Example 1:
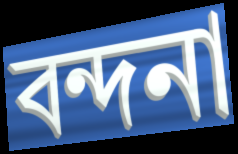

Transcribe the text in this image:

বন্দনা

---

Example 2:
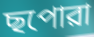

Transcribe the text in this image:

ছপোৱা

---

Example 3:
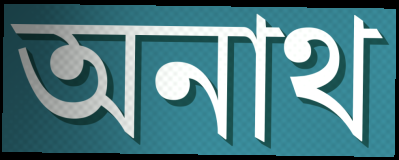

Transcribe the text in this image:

অনাথ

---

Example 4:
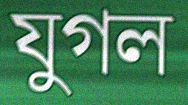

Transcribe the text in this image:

যুগল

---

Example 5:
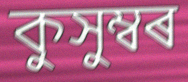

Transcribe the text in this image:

কুসুম্বৰ